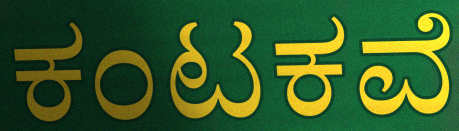
ಕಂಟಕವೆ